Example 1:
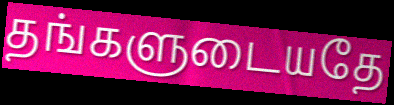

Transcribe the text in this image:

தங்களுடையதே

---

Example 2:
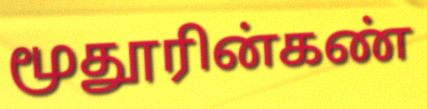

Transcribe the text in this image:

மூதூரின்கண்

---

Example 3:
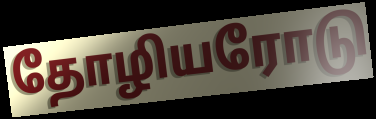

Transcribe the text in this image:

தோழியரோடு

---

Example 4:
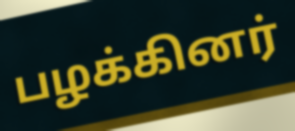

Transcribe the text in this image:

பழக்கினர்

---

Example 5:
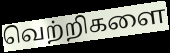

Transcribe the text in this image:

வெற்றிகளை